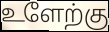
உளேற்கு